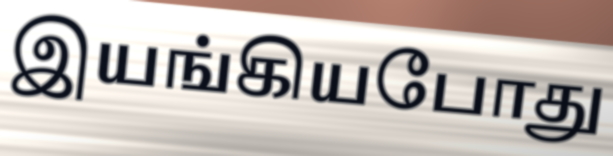
இயங்கியபோது